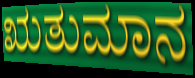
ಋತುಮಾನ